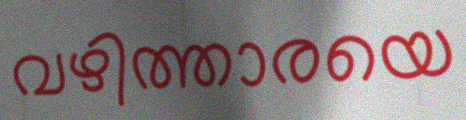
വഴിത്താരയെ